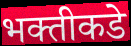
भक्तीकडे